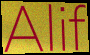
Alif